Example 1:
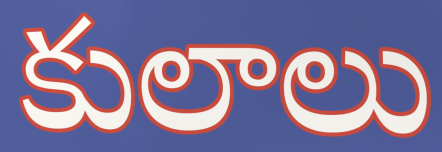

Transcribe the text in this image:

కులాలు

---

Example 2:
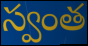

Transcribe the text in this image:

స్వంత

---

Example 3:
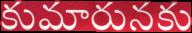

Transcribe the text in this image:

కుమారునకు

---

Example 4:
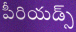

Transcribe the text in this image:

పీరియడ్స్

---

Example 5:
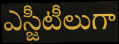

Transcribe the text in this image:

ఎస్జీటీలుగా